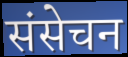
संसेचन